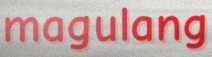
magulang